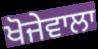
ਖੋਜੇਵਾਲਾ